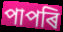
পাপৰি